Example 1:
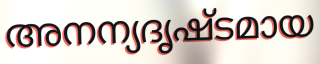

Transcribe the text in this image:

അനന്യദൃഷ്ടമായ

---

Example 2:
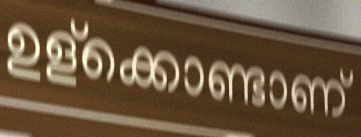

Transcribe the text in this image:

ഉള്ക്കൊണ്ടാണ്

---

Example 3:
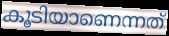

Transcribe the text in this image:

കൂടിയാണെന്നത്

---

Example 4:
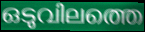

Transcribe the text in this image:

ഒടുവിലത്തെ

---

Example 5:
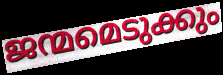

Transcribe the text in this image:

ജന്മമെടുക്കും